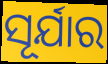
ସୂର୍ଯାର